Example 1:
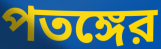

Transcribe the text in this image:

পতঙ্গের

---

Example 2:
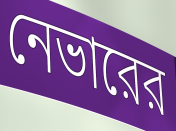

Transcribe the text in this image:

নেভারের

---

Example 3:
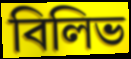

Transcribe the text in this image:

বিলিভ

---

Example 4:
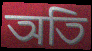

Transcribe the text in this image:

অতি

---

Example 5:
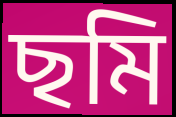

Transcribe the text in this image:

ছমি